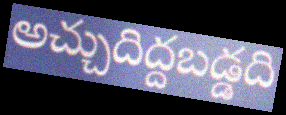
అచ్చుదిద్దబడ్డది